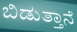
ಬಿಡುತ್ತಾನೆ